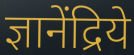
ज्ञानेंद्रिये